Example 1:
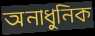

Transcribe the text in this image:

অনাধুনিক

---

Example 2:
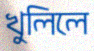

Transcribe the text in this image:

খুলিলে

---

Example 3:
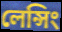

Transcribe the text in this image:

লেন্সিং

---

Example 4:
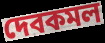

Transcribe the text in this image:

দেবকমল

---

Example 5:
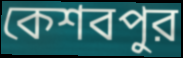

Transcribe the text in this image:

কেশবপুর